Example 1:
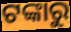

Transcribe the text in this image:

ଟଙ୍କାରୁ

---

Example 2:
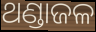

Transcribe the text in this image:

ଥଣ୍ଡାଜଳ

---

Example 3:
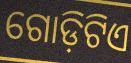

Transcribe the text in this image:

ଗୋଡ଼ିଟିଏ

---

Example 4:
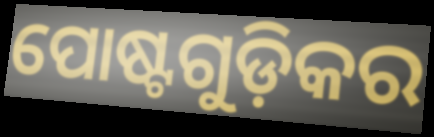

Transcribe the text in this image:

ପୋଷ୍ଟଗୁଡ଼ିକର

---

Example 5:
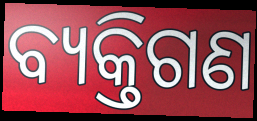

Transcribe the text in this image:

ବ୍ଯକ୍ତିଗଣ